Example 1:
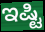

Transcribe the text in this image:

ಇಷ್ಟಿ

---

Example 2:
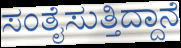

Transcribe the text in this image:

ಸಂತೈಸುತ್ತಿದ್ದಾನೆ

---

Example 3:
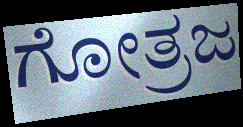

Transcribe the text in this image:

ಗೋತ್ರಜ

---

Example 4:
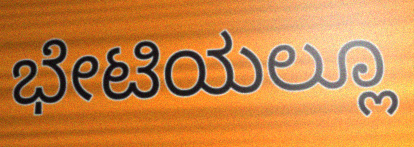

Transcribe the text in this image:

ಭೇಟಿಯಲ್ಲೂ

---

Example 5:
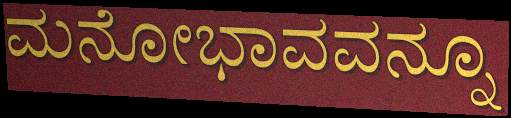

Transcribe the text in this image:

ಮನೋಭಾವವನ್ನೂ